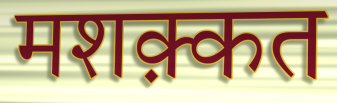
मशक़्कत